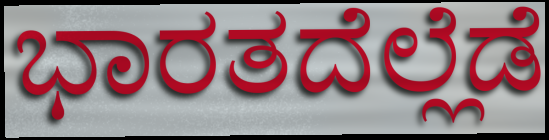
ಭಾರತದೆಲ್ಲೆಡೆ